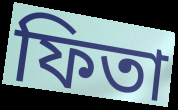
ফিতা